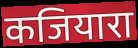
कजियारा